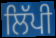
ਲਿੱਪੀ